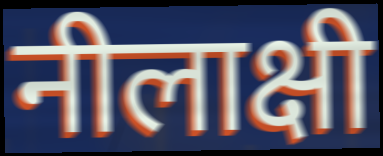
नीलाक्षी